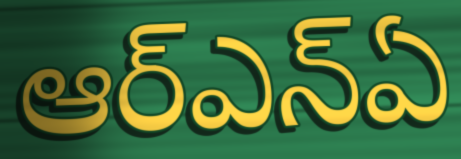
ఆర్ఎన్ఏ